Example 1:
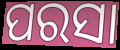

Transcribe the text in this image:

ପରସା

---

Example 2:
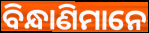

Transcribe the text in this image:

ବିନ୍ଧାଣିମାନେ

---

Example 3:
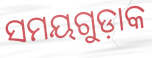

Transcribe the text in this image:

ସମୟଗୁଡ଼ାକ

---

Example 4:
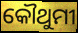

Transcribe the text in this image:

କୌଥୁମୀ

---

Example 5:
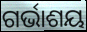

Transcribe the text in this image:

ଗର୍ଭାଶୟ